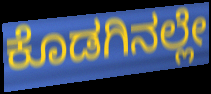
ಕೊಡಗಿನಲ್ಲೇ